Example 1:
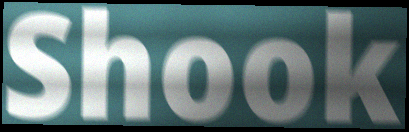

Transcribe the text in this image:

Shook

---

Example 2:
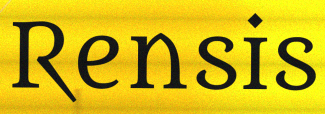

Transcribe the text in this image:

Rensis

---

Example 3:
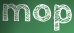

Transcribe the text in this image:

mop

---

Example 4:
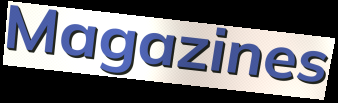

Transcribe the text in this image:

Magazines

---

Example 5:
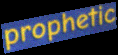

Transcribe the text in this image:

prophetic